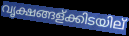
വൃക്ഷങ്ങള്ക്കിടയില്